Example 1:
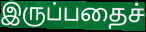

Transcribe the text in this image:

இருப்பதைச்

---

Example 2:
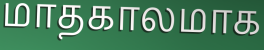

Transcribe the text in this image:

மாதகாலமாக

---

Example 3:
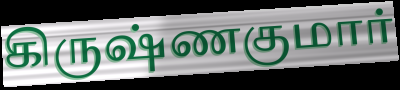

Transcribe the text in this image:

கிருஷ்ணகுமார்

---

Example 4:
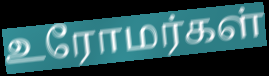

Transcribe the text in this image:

உரோமர்கள்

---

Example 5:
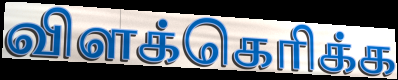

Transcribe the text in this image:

விளக்கெரிக்க